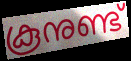
കൂനുണ്ട്